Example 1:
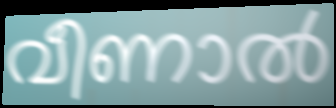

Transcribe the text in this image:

വീണാൽ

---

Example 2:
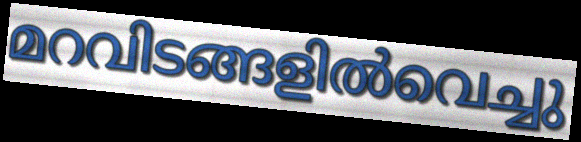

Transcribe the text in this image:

മറവിടങ്ങളിൽവെച്ചു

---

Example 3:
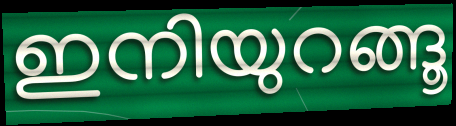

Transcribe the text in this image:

ഇനിയുറങ്ങൂ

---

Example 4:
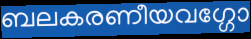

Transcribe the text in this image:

ബലകരണീയവഗ്ഗോ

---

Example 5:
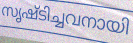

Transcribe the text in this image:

സൃഷ്ടിച്ചവനായി